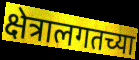
क्षेत्रालगतच्या